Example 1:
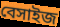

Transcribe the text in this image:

বেসাইজ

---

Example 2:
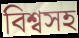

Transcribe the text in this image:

বিশ্বসহ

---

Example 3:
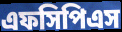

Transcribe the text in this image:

এফসিপিএস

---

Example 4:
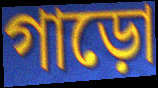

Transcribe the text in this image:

গাড়ো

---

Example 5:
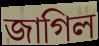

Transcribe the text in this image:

জাগিল